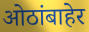
ओठांबाहेर